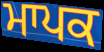
ਮਾਪਕ